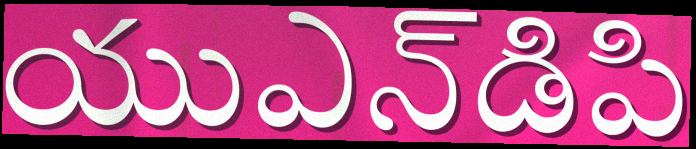
యుఎన్‌డిపి